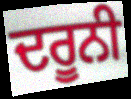
ਦਰੂਨੀ